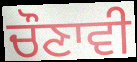
ਚੌਣਾਵੀ